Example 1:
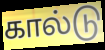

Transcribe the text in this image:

கால்டு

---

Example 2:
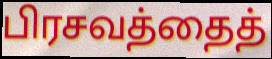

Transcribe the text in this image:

பிரசவத்தைத்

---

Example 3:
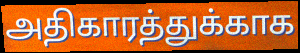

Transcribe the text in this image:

அதிகாரத்துக்காக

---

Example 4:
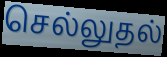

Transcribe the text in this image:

செல்லுதல்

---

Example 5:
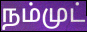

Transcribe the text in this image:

நம்முட்